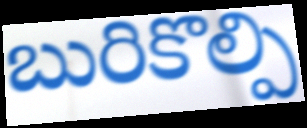
బురికొల్పి